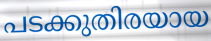
പടക്കുതിരയായ